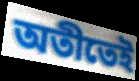
অতীতেই